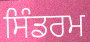
ਸਿੰਡਰਮ